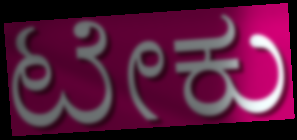
ಟೇಕು